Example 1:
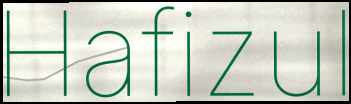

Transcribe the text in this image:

Hafizul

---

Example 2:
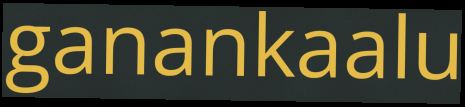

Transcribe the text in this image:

ganankaalu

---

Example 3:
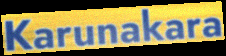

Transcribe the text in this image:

Karunakara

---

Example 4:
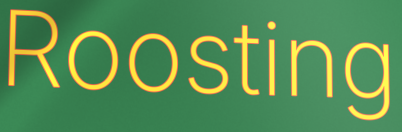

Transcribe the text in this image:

Roosting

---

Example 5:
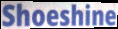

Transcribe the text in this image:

Shoeshine